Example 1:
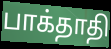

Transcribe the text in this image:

பாக்தாதி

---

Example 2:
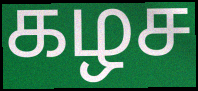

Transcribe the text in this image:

கழச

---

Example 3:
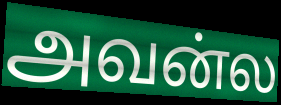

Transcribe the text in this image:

அவன்ல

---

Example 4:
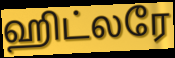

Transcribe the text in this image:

ஹிட்லரே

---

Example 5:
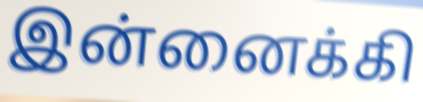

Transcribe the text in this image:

இன்னைக்கி